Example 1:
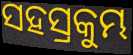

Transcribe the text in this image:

ସହସ୍ରକୁମ୍ଭ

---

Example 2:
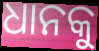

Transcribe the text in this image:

ଧାନକୁ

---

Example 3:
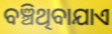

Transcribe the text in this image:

ବଞ୍ଚିଥିବାଯାଏ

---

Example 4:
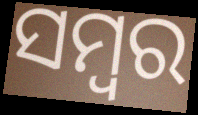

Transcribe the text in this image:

ସମ୍ବର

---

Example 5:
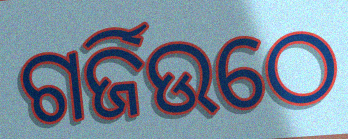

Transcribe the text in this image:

ଗର୍ଜିଉଠେ